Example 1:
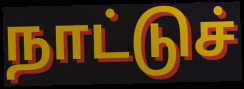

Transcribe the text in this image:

நாட்டுச்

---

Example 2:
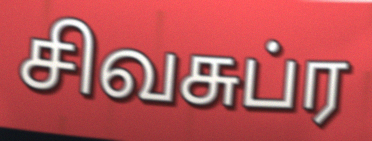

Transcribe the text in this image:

சிவசுப்ர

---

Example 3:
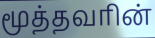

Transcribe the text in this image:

மூத்தவரின்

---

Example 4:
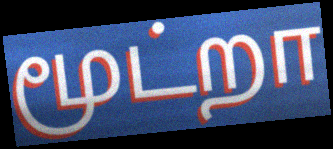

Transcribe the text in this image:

மூட்றா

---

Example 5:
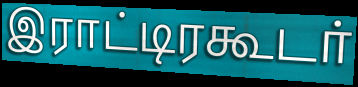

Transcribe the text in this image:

இராட்டிரகூடர்